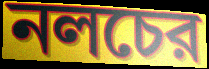
নলচের